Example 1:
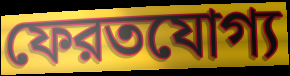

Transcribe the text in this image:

ফেরতযোগ্য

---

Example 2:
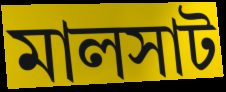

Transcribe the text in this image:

মালসাট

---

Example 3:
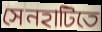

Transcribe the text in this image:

সেনহাটিতে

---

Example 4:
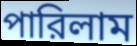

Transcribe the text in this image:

পারিলাম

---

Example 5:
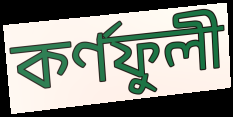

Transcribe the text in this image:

কর্ণফুলী